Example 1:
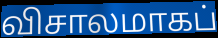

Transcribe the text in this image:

விசாலமாகப்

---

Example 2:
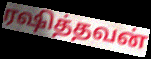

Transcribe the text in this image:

ரஷித்தவன்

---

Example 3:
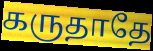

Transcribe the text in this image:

கருதாதே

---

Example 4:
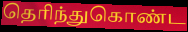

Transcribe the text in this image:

தெரிந்துகொண்ட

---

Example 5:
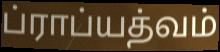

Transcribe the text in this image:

ப்ராப்யத்வம்